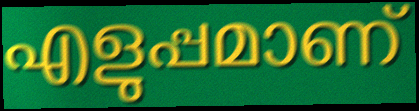
എളുപ്പമാണ്